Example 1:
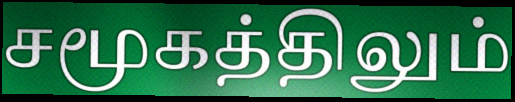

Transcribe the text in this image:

சமூகத்திலும்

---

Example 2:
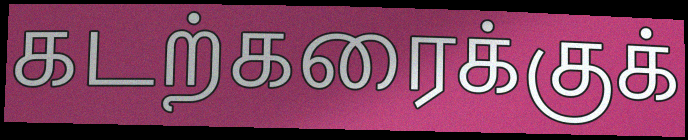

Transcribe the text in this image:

கடற்கரைக்குக்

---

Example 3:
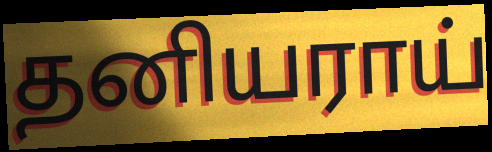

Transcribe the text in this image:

தனியராய்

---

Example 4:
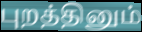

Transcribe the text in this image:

புறத்தினும்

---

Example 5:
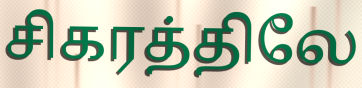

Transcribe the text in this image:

சிகரத்திலே